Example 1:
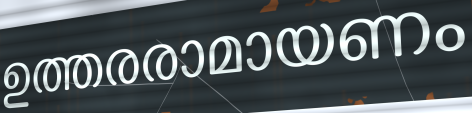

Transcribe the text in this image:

ഉത്തരരാമായണം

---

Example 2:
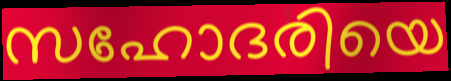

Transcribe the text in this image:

സഹോദരിയെ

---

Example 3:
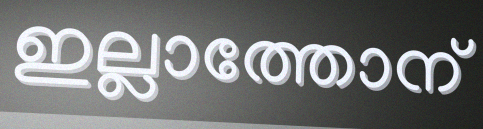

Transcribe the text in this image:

ഇല്ലാത്തോന്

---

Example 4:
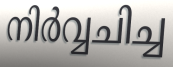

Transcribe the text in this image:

നിർവ്വചിച്ച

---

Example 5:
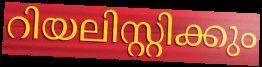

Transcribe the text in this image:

റിയലിസ്റ്റിക്കും